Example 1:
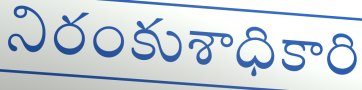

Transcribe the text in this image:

నిరంకుశాధికారి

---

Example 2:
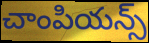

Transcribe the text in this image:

చాంపియన్స్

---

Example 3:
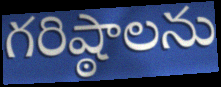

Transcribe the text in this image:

గరిష్ఠాలను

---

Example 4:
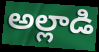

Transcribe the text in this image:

అల్లాడి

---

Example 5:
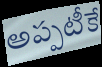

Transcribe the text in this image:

అప్పటీకే